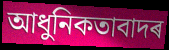
আধুনিকতাবাদৰ